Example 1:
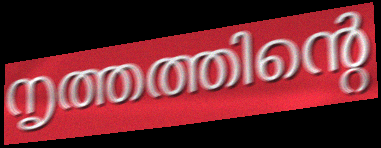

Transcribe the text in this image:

നൃത്തത്തിന്റെ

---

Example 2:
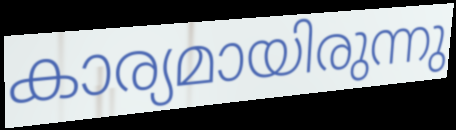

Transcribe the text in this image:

കാര്യമായിരുന്നു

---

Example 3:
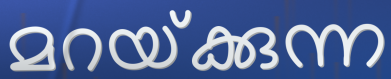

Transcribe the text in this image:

മറയ്‌ക്കുന്ന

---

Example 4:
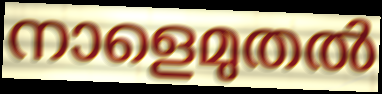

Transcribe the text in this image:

നാളെമുതൽ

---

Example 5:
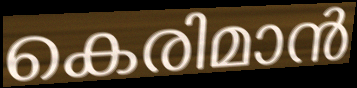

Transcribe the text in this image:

കെരിമാൻ